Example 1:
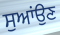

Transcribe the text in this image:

ਸੁਆਂਉਣ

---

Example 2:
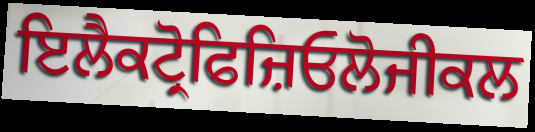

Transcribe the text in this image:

ਇਲੈਕਟ੍ਰੋਫਿਜ਼ਿਓਲੋਜੀਕਲ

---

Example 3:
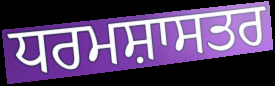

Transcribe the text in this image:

ਧਰਮਸ਼ਾਸਤਰ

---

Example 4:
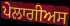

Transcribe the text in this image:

ਪੇਲਾਗੀਅਸ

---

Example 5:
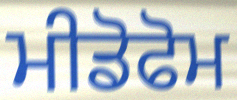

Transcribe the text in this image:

ਮੀਡੋਫੋਮ